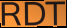
RDT